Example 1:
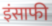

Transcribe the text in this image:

इंसाफी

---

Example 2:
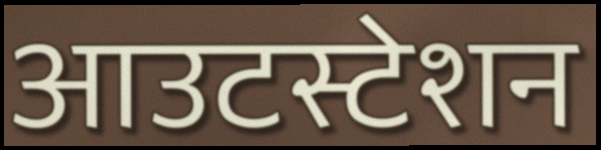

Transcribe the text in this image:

आउटस्टेशन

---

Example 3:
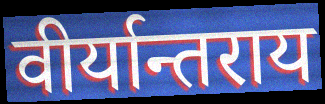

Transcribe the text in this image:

वीर्यान्तराय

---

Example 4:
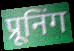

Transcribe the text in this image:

प्रूनिंग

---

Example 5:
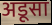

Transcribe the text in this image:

अडूसा